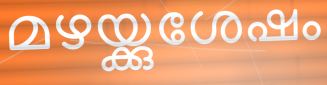
മഴയ്ക്കുശേഷം